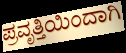
ಪ್ರವೃತ್ತಿಯಿಂದಾಗಿ